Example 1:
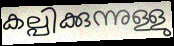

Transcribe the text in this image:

കല്പിക്കുന്നുള്ളു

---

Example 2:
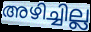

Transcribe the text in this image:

അഴിച്ചില്ല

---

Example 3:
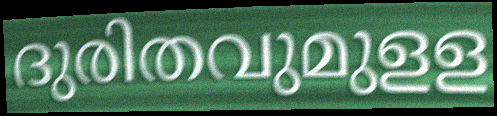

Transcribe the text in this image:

ദുരിതവുമുളള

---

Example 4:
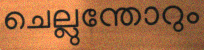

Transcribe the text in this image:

ചെല്ലുന്തോറും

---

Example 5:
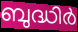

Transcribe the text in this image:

ബുദ്ധിർ